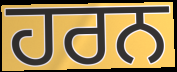
ਹਰਨ